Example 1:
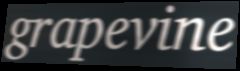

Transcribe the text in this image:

grapevine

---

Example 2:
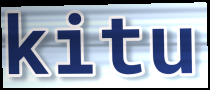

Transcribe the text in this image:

kitu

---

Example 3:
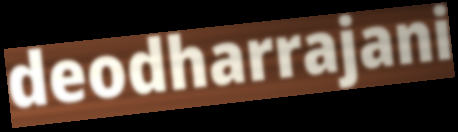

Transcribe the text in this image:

deodharrajani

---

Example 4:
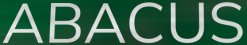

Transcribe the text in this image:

ABACUS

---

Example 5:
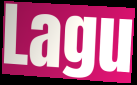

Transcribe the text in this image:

Lagu